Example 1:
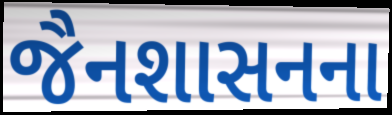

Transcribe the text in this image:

જૈનશાસનના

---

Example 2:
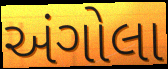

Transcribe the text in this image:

અંગોલા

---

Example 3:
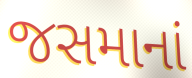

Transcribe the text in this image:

જસમાનાં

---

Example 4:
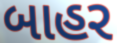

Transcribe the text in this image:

બાહર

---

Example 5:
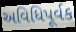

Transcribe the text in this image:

અવિધિપૂર્વક